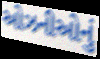
ઓઝનીઓનું